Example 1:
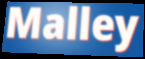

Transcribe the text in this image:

Malley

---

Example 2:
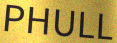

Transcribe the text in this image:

PHULL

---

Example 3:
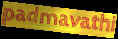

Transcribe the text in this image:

padmavathi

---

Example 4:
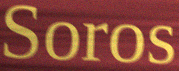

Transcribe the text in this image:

Soros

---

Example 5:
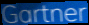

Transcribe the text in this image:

Gartner